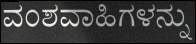
ವಂಶವಾಹಿಗಳನ್ನು